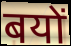
बयों